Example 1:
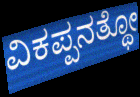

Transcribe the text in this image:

ವಿಕಪ್ಪನತ್ಥೋ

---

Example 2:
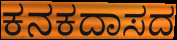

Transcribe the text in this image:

ಕನಕದಾಸದ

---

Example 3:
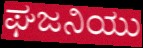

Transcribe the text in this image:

ಘಜನಿಯು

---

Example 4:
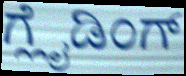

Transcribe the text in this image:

ಗ್ಲೈಡಿಂಗ್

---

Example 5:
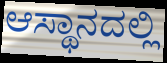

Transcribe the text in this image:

ಆಸ್ಥಾನದಲ್ಲಿ